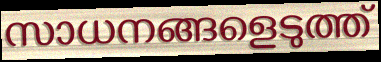
സാധനങ്ങളെടുത്ത്